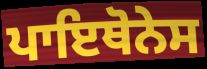
ਪਾਇਥੋਨੇਸ